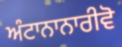
ਅੰਟਾਨਾਨਾਰੀਵੋ